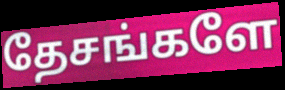
தேசங்களே